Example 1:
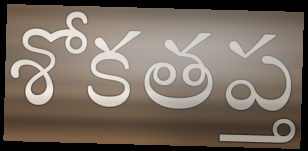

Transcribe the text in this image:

శోకతప్త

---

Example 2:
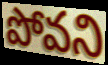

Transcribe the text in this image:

పోవని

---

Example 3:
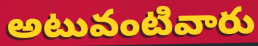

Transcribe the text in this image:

అటువంటివారు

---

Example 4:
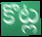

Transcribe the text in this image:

కొట్ల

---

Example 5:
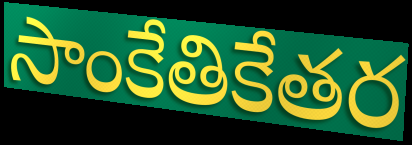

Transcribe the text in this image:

సాంకేతికేతర